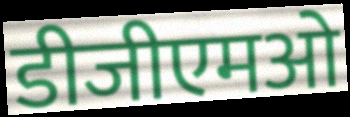
डीजीएमओ